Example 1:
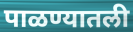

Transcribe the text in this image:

पाळण्यातली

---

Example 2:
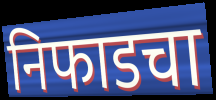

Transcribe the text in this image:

निफाडचा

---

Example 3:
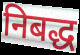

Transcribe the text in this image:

निबद्ध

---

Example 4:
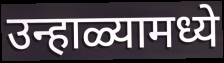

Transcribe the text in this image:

उन्हाळ्यामध्ये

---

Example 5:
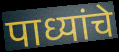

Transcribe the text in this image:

पाध्यांचे